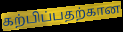
கற்பிப்பதற்கான